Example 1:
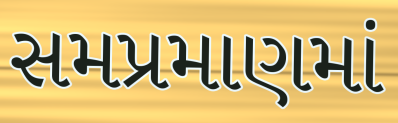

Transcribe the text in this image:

સમપ્રમાણમાં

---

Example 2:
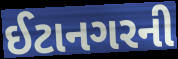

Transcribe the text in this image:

ઈટાનગરની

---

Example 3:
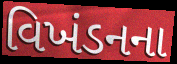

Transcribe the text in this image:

વિખંડનના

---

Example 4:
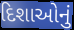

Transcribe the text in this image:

દિશાઓનું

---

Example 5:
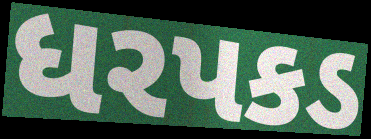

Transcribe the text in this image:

ધરપકડ